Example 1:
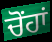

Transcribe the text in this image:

ਚੋਂਹਾਂ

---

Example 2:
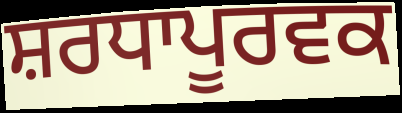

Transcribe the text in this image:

ਸ਼ਰਧਾਪੂਰਵਕ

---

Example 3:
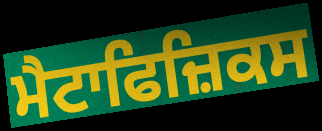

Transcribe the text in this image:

ਮੈਟਾਫਿਜ਼ਿਕਸ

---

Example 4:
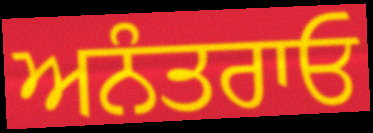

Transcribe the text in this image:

ਅਨੰਤਰਾਓ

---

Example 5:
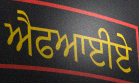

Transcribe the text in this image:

ਐਫਆਈਏ